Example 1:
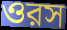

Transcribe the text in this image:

ওরস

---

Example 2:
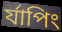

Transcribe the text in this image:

র্যাপিং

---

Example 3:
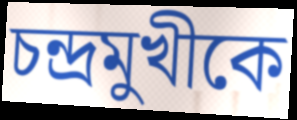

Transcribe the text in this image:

চন্দ্রমুখীকে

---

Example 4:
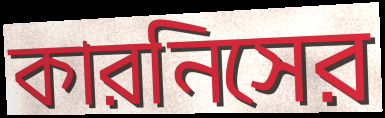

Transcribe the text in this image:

কারনিসের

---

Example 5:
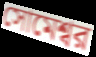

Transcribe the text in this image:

সোমেশ্বর